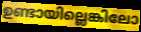
ഉണ്ടായില്ലെങ്കിലോ